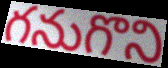
గనుగొని